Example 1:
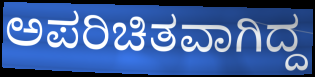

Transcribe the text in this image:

ಅಪರಿಚಿತವಾಗಿದ್ದ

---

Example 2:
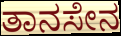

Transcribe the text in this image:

ತಾನಸೇನ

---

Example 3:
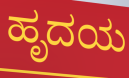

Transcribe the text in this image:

ಹೃದಯ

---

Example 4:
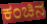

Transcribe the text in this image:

ಕಂಚಿನ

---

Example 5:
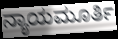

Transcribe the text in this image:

ನ್ಯಾಯಮೂರ್ತಿ